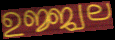
ഉജ്ജ്വല